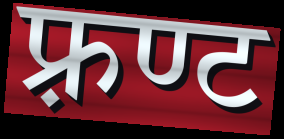
फ़्रण्ट